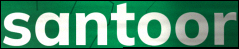
santoor